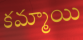
కమ్మాయి